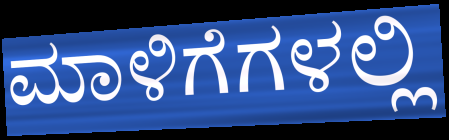
ಮಾಳಿಗೆಗಳಲ್ಲಿ